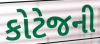
કોટેજની